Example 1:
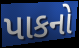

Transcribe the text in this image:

પાકનો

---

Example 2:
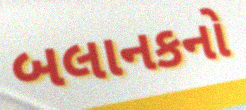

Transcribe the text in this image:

બલાનકનો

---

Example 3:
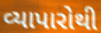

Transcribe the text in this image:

વ્યાપારોથી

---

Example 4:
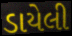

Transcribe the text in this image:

ડાયેલી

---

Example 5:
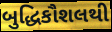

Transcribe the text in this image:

બુદ્ધિકૌશલથી